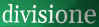
divisione